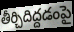
తీర్చిదిద్దడంపై